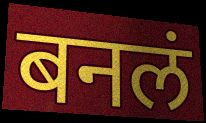
बनलं